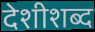
देशीशब्द